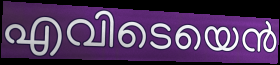
എവിടെയെൻ